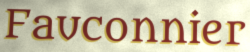
Fauconnier